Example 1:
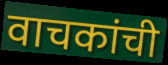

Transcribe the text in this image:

वाचकांची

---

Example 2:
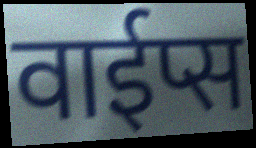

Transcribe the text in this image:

वाईप्स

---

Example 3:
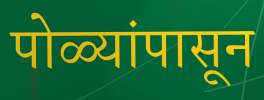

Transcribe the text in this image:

पोळ्यांपासून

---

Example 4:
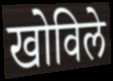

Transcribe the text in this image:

खोविले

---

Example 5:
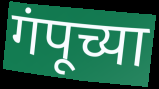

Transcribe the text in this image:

गंपूच्या